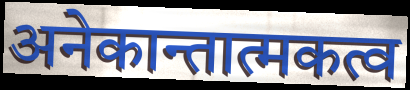
अनेकान्तात्मकत्व